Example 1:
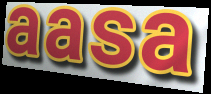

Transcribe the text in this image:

aasa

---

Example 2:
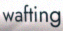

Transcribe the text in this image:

wafting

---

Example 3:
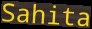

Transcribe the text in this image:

Sahita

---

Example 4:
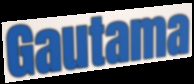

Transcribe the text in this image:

Gautama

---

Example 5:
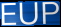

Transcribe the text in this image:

EUP